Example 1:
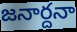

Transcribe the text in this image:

జనార్దనా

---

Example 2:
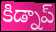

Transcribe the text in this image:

కిడ్నాప్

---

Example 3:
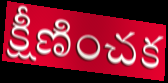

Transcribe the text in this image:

క్షీణించక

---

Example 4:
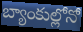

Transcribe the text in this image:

బ్యాంకుల్లోనో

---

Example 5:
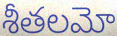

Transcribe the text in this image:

శీతలమో